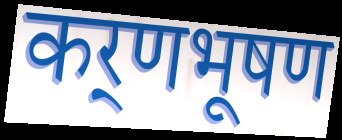
कर्णभूषण